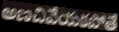
అణచివేయకపోతే